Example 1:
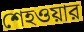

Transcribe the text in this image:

শেহওয়ার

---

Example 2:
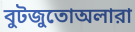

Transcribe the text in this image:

বুটজুতোঅলারা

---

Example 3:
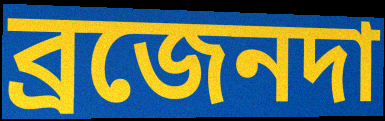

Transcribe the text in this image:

ব্রজেনদা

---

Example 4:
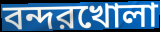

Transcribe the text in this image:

বন্দরখোলা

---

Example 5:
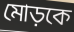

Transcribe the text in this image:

মোড়কে